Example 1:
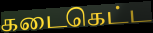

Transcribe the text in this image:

கடைகெட்ட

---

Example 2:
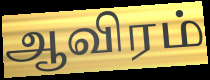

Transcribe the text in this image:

ஆவிரம்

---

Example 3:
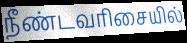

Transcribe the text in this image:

நீண்டவரிசையில்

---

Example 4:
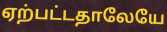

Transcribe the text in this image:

ஏற்பட்டதாலேயே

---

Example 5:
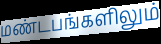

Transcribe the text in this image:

மண்டபங்களிலும்